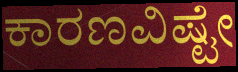
ಕಾರಣವಿಷ್ಟೇ